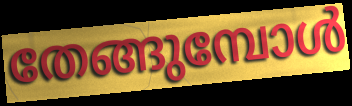
തേങ്ങുമ്പോൾ